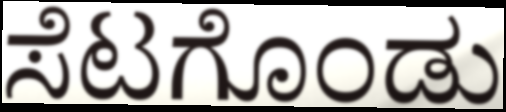
ಸೆಟಗೊಂಡು